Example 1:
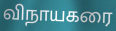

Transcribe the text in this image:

விநாயகரை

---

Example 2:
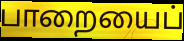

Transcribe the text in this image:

பாறையைப்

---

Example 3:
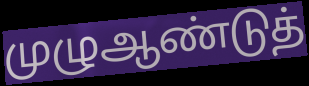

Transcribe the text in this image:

முழுஆண்டுத்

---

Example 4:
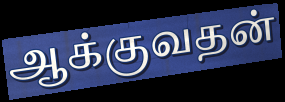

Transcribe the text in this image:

ஆக்குவதன்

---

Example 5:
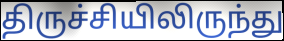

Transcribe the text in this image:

திருச்சியிலிருந்து